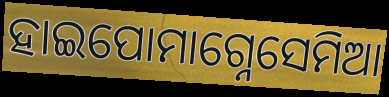
ହାଇପୋମାଗ୍ନେସେମିଆ